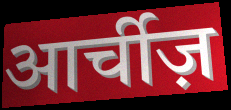
आर्चीज़